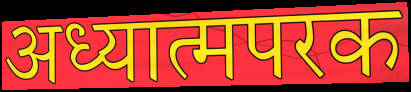
अध्यात्मपरक